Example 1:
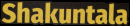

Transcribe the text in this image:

Shakuntala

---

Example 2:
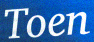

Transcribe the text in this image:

Toen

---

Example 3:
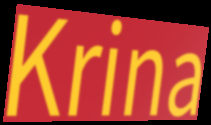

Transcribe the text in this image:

Krina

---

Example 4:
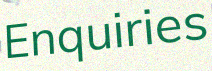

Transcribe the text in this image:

Enquiries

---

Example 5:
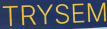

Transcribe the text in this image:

TRYSEM